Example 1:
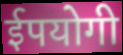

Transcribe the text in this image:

ईपयोगी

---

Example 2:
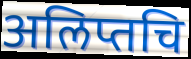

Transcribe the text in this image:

अलिप्तचि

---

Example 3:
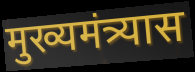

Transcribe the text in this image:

मुख्यमंत्र्यास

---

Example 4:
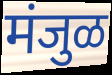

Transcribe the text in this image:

मंजुळ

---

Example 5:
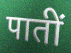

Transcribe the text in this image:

पातीं